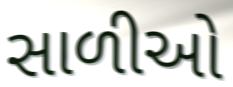
સાળીઓ